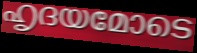
ഹൃദയമോടെ